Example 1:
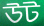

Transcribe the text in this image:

উট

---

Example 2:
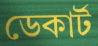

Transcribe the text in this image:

ডেকাৰ্ট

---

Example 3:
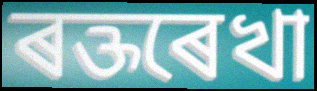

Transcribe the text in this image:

ৰক্তৰেখা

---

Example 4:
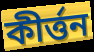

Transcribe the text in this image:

কীৰ্ত্তন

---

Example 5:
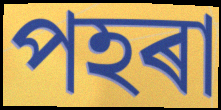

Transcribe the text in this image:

পহৰা